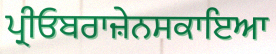
ਪ੍ਰੀਓਬਰਾਜ਼ੇਨਸਕਾਇਆ